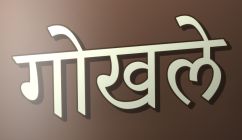
गोखले